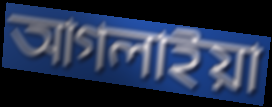
আগলাইয়া